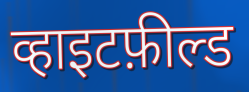
व्हाइटफ़ील्ड